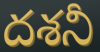
దశనీ